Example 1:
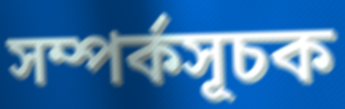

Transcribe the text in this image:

সম্পর্কসূচক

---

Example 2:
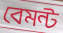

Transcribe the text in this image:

বেমন্ট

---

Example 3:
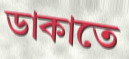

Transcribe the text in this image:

ডাকাতে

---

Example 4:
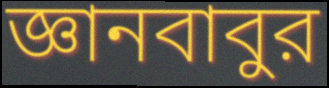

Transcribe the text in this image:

জ্ঞানবাবুর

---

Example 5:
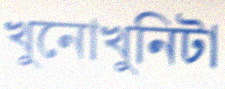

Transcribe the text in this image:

খুনোখুনিটা